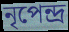
নৃপেন্দ্র